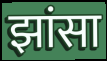
झांसा